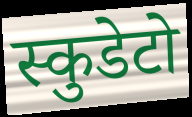
स्कुडेटो